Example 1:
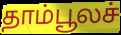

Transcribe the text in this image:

தாம்பூலச்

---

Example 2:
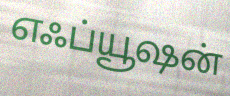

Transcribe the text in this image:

எஃப்யூஷன்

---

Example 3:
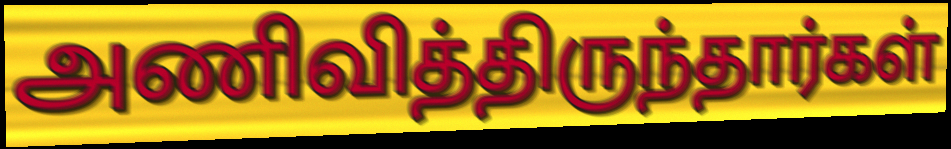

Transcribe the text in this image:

அணிவித்திருந்தார்கள்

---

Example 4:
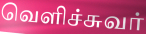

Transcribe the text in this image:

வெளிச்சுவர்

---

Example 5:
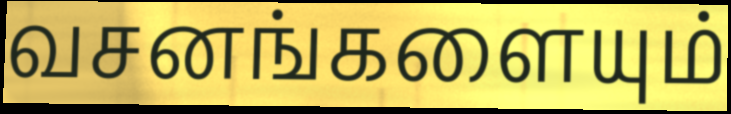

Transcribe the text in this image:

வசனங்களையும்